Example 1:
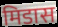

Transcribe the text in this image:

मिडास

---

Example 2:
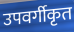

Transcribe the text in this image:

उपवर्गीकृत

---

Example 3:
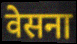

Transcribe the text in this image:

वेसना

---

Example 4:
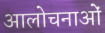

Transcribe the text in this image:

आलोचनाओं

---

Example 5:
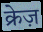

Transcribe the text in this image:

क्रेज़